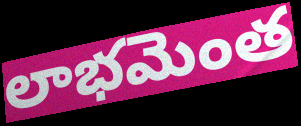
లాభమెంత